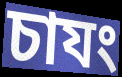
চাযং